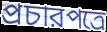
প্রচারপত্রে